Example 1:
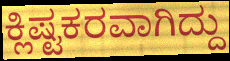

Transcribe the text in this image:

ಕ್ಲಿಷ್ಟಕರವಾಗಿದ್ದು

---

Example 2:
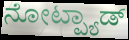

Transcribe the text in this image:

ನೋಟ್ಪ್ಯಾಡ್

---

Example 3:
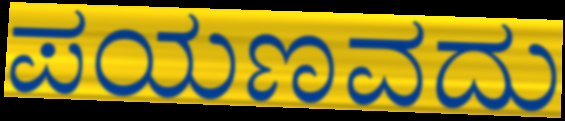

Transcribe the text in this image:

ಪಯಣವದು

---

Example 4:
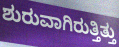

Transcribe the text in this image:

ಶುರುವಾಗಿರುತ್ತಿತ್ತು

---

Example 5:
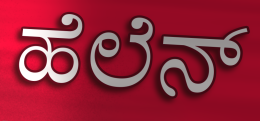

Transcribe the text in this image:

ಹೆಲೆನ್